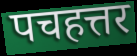
पचहत्तर